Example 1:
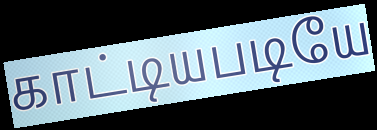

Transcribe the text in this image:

காட்டியபடியே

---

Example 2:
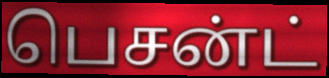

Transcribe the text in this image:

பெசன்ட்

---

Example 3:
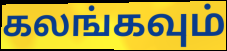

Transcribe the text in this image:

கலங்கவும்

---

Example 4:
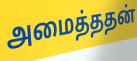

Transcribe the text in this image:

அமைத்ததன்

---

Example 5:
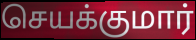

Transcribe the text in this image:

செயக்குமார்